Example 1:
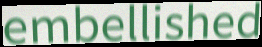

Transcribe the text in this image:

embellished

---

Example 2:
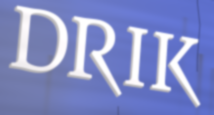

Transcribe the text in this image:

DRIK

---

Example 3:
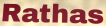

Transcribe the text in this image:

Rathas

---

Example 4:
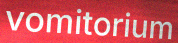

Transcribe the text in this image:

vomitorium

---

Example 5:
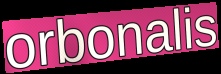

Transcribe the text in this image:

orbonalis